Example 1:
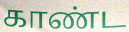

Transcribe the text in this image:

காண்ட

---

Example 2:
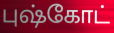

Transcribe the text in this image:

புஷ்கோட்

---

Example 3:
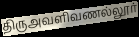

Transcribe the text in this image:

திருஅவளிவணல்லூர்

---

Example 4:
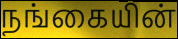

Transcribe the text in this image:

நங்கையின்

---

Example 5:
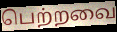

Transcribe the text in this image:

பெற்றவை